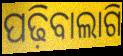
ପଢ଼ିବାଲାଗି